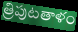
త్రిపుటతాళం